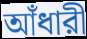
আঁধারী